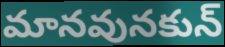
మానవునకున్